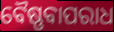
ବୈଷ୍ଣବାପରାଧ